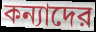
কন্যাদের